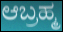
ಆಬ್ರಹ್ಮ